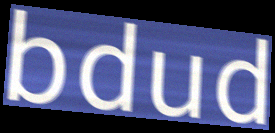
bdud